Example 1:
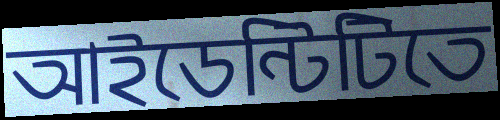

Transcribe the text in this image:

আইডেন্টিটিতে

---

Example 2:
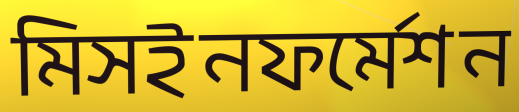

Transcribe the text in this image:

মিসইনফর্মেশন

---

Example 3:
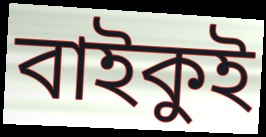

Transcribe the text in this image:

বাইকুই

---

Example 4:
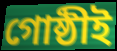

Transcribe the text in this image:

গোষ্ঠীই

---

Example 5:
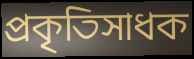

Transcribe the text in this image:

প্রকৃতিসাধক